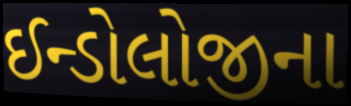
ઈન્ડોલોજીના